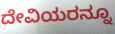
ದೇವಿಯರನ್ನೂ